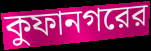
কুফানগরের